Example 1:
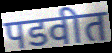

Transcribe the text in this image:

पडवीत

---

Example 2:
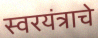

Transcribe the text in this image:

स्वरयंत्राचे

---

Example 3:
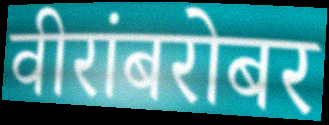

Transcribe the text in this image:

वीरांबरोबर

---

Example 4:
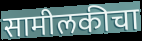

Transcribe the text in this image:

सामीलकीचा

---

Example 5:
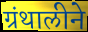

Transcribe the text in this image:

ग्रंथालीने